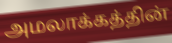
அமலாக்கத்தின்